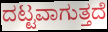
ದಟ್ಟವಾಗುತ್ತದೆ